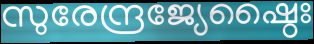
സുരേന്ദ്രജ്യേഷ്ഠൈഃ